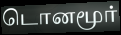
டொனமூர்